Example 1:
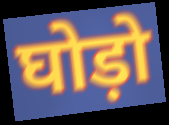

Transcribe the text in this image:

घोड़ो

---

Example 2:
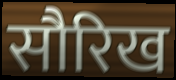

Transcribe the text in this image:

सौरिख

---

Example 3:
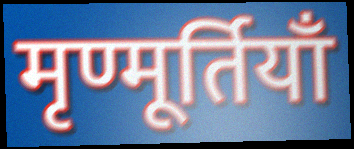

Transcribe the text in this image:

मृण्मूर्तियाँ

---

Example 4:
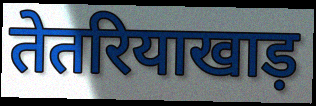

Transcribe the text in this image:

तेतरियाखाड़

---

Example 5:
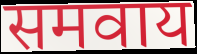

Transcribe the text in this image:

समवाय